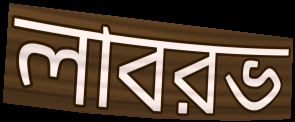
লাবরভ